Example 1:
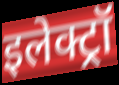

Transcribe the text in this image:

इलेक्ट्रॉ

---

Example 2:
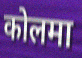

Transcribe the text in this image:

कोलमा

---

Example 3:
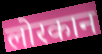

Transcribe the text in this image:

लोरकान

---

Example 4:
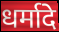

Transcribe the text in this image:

धर्मादे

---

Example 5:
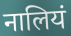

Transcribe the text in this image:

नालियं